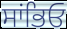
ਸਾਂਭਿਓ